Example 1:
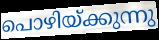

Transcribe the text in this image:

പൊഴിയ്ക്കുന്നു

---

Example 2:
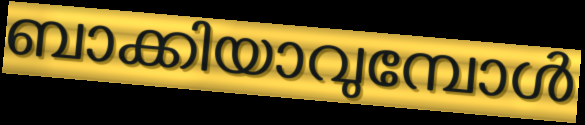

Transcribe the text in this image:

ബാക്കിയാവുമ്പോൾ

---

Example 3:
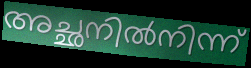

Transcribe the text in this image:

അച്ഛനിൽനിന്ന്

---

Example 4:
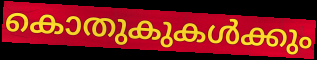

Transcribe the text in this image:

കൊതുകുകൾക്കും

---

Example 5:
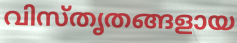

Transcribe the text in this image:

വിസ്തൃതങ്ങളായ